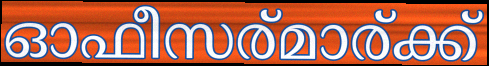
ഓഫീസര്മാര്ക്ക്